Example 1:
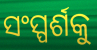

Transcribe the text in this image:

ସଂସ୍ପର୍ଶକୁ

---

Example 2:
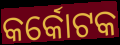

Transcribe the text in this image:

କର୍କୋଟକ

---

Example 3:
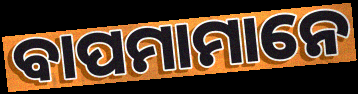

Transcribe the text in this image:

ବାପମାମାନେ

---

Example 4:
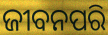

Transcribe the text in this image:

ଜୀବନପରି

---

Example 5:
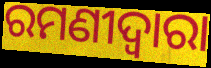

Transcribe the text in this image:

ରମଣୀଦ୍ୱାରା